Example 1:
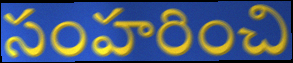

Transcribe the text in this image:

సంహరించి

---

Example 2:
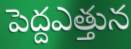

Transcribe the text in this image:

పెద్దఎత్తున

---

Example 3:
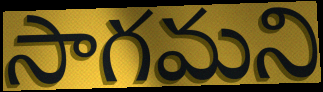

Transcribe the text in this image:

సాగమని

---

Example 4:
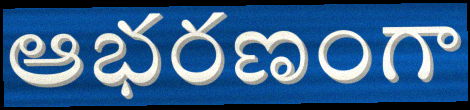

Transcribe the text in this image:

ఆభరణంగా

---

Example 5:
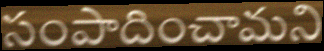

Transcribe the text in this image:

సంపాదించామని